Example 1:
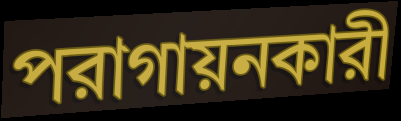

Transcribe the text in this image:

পরাগায়নকারী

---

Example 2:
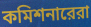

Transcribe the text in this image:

কমিশনারেরা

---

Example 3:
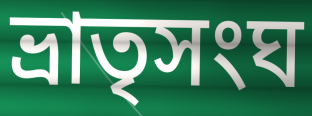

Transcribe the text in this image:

ভ্রাতৃসংঘ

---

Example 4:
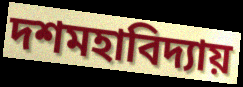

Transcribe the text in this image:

দশমহাবিদ্যায়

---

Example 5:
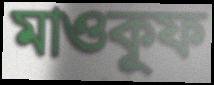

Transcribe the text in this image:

মাওকূফ